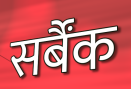
सर्बैंक